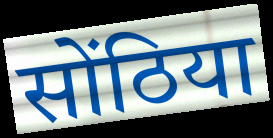
सोंठिया